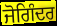
ਜੋਗਿੰਦਰ